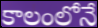
కాలంలోనే